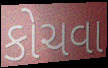
કોચવા